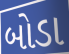
બોડા